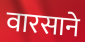
वारसाने